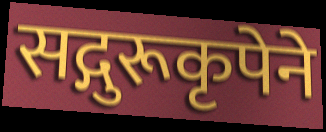
सद्गुरूकृपेने